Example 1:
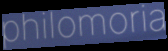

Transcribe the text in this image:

philomoria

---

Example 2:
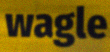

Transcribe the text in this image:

wagle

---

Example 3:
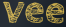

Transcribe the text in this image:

vee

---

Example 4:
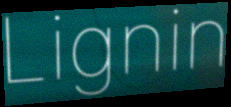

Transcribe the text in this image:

Lignin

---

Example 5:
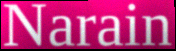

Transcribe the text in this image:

Narain